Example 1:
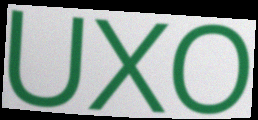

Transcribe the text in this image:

UXO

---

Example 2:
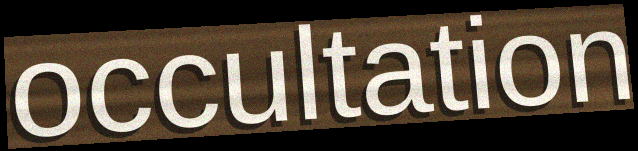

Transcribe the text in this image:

occultation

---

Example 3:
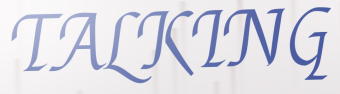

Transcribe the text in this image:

TALKING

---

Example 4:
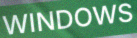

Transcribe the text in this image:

WINDOWS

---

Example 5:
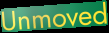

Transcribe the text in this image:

Unmoved